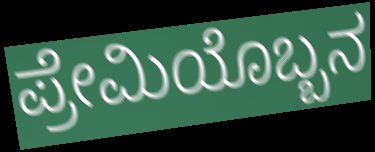
ಪ್ರೇಮಿಯೊಬ್ಬನ